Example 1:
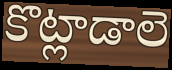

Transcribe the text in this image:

కొట్లాడాలె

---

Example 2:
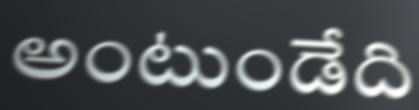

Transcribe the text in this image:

అంటుండేది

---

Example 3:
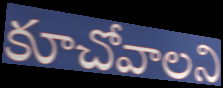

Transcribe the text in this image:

కూచోవాలని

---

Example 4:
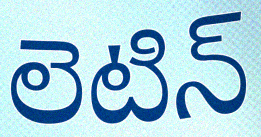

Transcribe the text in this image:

లెటిన్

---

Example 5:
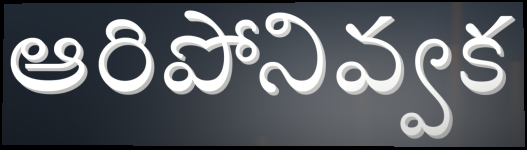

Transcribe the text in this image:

ఆరిపోనివ్వక